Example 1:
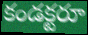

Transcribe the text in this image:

కండక్టరూ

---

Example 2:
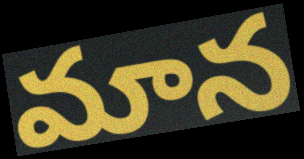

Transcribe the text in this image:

మాన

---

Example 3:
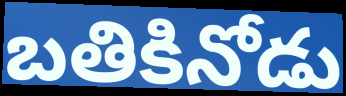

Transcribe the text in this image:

బతికినోడు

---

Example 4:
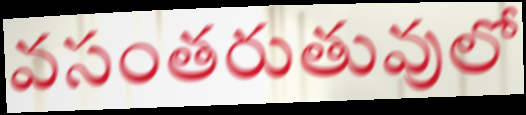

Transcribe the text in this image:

వసంతరుతువులో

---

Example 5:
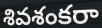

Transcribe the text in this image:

శివశంకరా